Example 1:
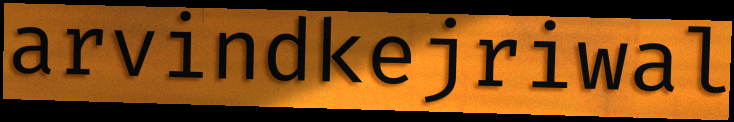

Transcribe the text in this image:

arvindkejriwal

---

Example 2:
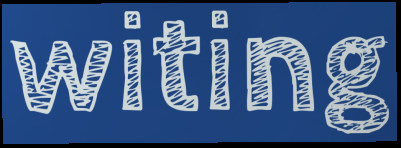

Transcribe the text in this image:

witing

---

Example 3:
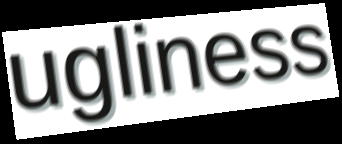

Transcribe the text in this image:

ugliness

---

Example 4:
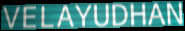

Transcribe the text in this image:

VELAYUDHAN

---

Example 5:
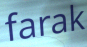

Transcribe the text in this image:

farak